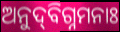
ଅନୁଦ୍‌ବିଗ୍ନମନାଃ